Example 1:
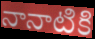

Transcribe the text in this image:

నానాటికి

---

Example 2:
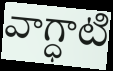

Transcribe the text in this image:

వాగ్ధాటి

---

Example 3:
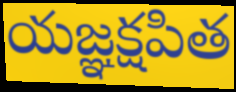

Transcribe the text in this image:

యజ్ఞక్షపిత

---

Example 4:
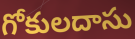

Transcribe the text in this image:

గోకులదాసు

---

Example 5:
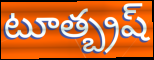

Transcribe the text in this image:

టూత్బ్రష్